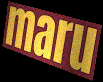
maru